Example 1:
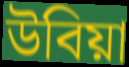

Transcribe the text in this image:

উবিয়া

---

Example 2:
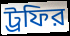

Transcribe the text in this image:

ট্রফির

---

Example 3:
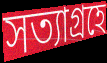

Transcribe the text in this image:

সত্যাগ্রহে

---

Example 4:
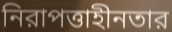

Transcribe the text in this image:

নিরাপত্তাহীনতার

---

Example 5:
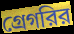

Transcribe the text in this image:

গ্রেগরির